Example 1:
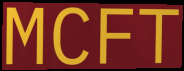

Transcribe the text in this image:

MCFT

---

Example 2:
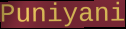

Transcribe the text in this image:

Puniyani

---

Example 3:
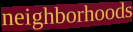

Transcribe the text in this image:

neighborhoods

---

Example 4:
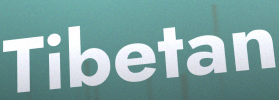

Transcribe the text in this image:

Tibetan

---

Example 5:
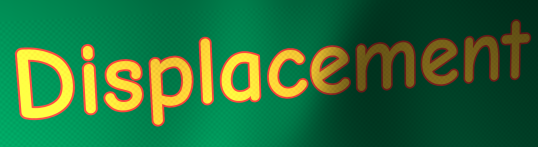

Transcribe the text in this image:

Displacement